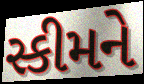
સ્કીમને